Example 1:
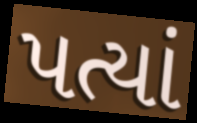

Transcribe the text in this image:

પત્યાં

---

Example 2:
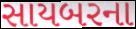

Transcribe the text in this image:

સાયબરના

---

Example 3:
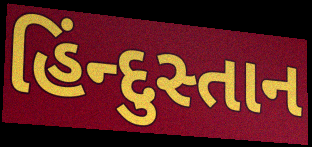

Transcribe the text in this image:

હિંન્દુસ્તાન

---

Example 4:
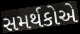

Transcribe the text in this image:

સમર્થકોએ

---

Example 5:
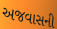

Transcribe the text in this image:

અજવાસની